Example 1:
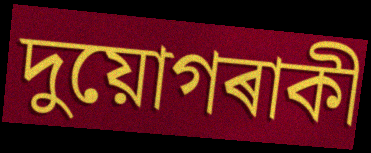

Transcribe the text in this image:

দুয়োগৰাকী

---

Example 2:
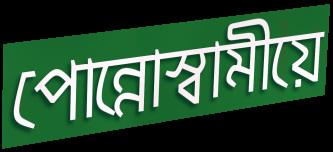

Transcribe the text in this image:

পোন্নোস্বামীয়ে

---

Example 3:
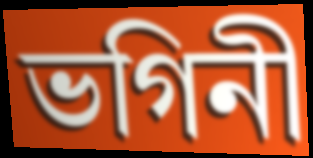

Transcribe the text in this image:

ভগিনী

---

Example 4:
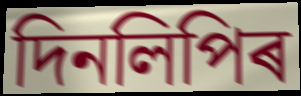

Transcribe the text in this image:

দিনলিপিৰ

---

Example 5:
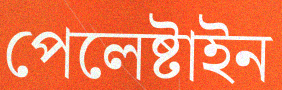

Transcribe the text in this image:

পেলেষ্টাইন